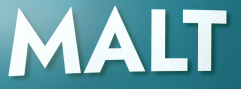
MALT